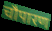
चौपारण